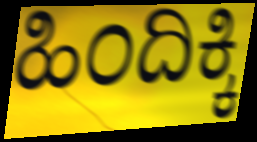
ಹಿಂದಿಕ್ಕಿ